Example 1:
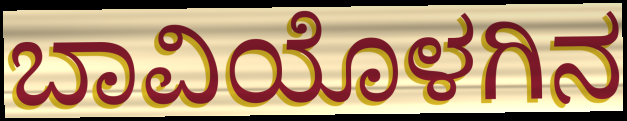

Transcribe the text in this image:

ಬಾವಿಯೊಳಗಿನ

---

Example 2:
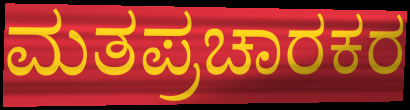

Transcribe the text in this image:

ಮತಪ್ರಚಾರಕರ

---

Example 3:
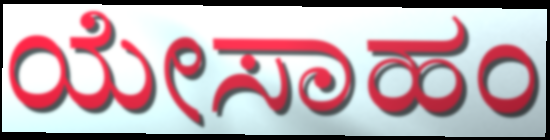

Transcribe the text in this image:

ಯೇಸಾಹಂ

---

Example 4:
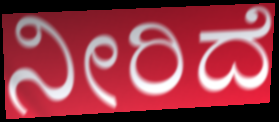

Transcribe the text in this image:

ನೀರಿದೆ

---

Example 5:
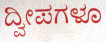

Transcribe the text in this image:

ದ್ವೀಪಗಳೂ